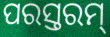
ପରସ୍ତରମ୍